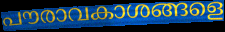
പൗരാവകാശങ്ങളെ